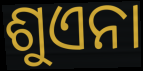
ଶୁଏନା